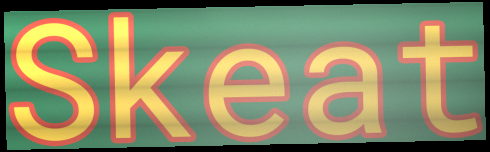
Skeat